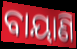
ବାୟାଣି